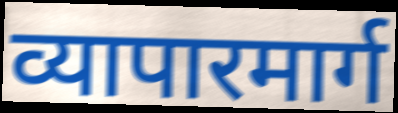
व्यापारमार्ग